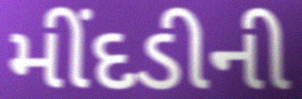
મીંદડીની